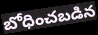
బోధించబడిన